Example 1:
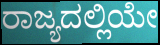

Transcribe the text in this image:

ರಾಜ್ಯದಲ್ಲಿಯೇ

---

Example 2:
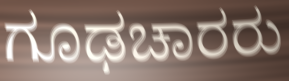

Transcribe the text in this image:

ಗೂಢಚಾರರು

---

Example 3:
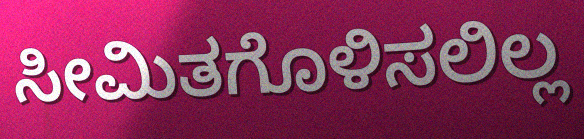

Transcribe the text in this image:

ಸೀಮಿತಗೊಳಿಸಲಿಲ್ಲ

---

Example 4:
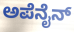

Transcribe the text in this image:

ಅಪೆನೈನ್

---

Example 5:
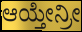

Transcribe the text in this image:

ಆಯ್ತೇನ್ರೀ